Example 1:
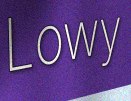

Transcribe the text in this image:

Lowy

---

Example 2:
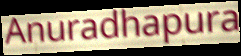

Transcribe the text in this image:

Anuradhapura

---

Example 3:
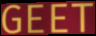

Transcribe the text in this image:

GEET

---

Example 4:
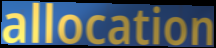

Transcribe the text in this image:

allocation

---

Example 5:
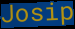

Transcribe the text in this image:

Josip